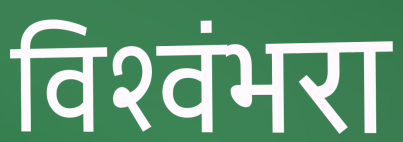
विश्वंभरा